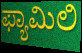
ಫ್ಯಾಮಿಲಿ